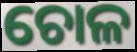
ଚୋଳ